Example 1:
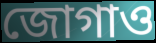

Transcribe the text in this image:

জোগাও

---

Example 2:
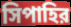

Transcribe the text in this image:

সিপাহির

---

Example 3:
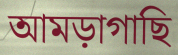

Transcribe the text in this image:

আমড়াগাছি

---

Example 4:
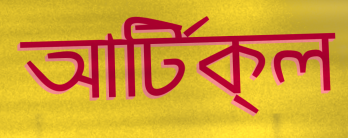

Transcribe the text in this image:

আর্টিক্‌ল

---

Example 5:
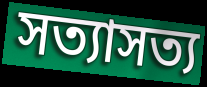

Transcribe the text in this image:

সত্যাসত্য